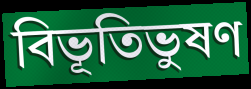
বিভূতিভুষণ